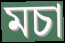
মচা